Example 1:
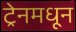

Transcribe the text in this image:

ट्रेनमधून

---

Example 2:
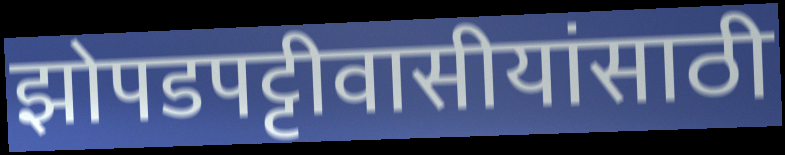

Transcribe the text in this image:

झोपडपट्टीवासीयांसाठी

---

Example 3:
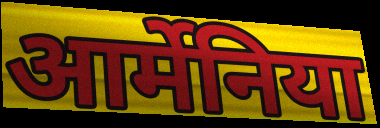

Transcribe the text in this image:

आर्मेनिया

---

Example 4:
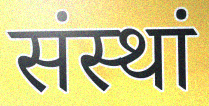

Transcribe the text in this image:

संस्थां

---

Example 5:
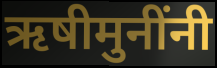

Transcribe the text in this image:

ऋषीमुनींनी